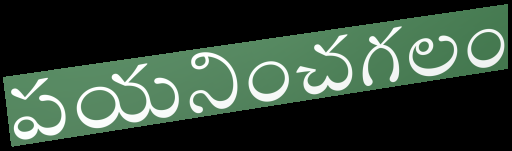
పయనించగలం